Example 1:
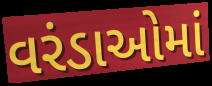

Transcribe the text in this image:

વરંડાઓમાં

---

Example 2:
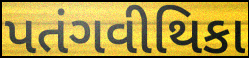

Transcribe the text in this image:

પતંગવીથિકા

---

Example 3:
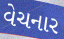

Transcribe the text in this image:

વેચનાર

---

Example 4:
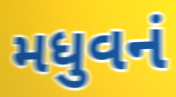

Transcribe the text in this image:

મધુવનં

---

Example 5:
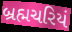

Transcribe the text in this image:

બ્રહ્મચરિયં